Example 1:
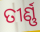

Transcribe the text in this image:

ତୀର୍ଣ୍ଣ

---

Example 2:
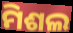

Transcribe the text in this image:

ମିଶଲ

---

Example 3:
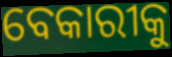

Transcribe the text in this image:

ବେକାରୀକୁ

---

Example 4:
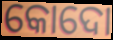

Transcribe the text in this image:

କୋଦୋ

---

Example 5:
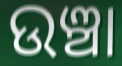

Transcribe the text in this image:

ଉଞ୍ଚା